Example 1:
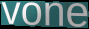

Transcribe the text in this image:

vone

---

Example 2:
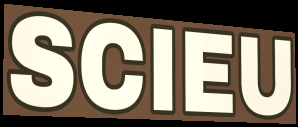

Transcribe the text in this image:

SCIEU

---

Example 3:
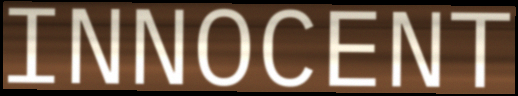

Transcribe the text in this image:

INNOCENT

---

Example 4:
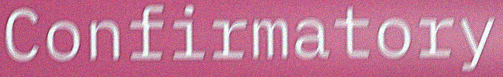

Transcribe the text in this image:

Confirmatory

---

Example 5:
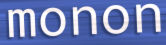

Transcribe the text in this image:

monon